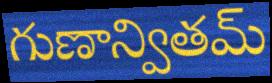
గుణాన్వితమ్